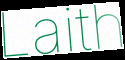
Laith